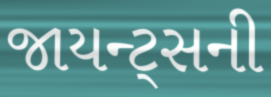
જાયન્ટ્સની